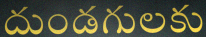
దుండగులకు